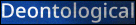
Deontological